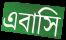
এবাসি